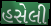
હસેલી